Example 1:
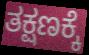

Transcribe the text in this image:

ತಕ್ಷಣಕ್ಕೆ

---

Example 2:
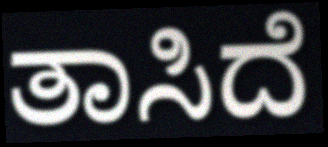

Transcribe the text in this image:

ತಾಸಿದೆ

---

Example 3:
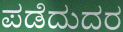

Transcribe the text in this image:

ಪಡೆದುದರ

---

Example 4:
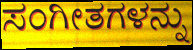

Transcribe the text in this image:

ಸಂಗೀತಗಳನ್ನು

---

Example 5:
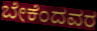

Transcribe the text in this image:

ಬೇಕೆಂದವರ